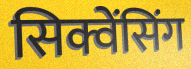
सिक्वेंसिंग